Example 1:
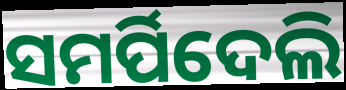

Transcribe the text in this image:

ସମର୍ପିଦେଲି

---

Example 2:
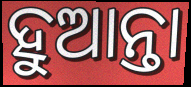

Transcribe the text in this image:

ହୁଆନ୍ତା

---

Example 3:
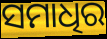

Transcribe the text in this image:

ସମାଧିର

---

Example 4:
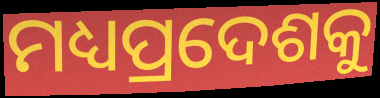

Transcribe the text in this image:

ମଧ୍ୟପ୍ରଦେଶକୁ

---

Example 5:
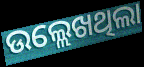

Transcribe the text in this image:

ଉଲ୍ଲେଖଥିଲା